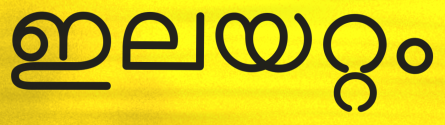
ഇലയറ്റം